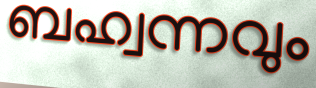
ബഹ്വന്നവും